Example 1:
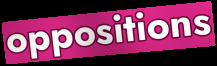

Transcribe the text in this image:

oppositions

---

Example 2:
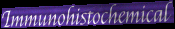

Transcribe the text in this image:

Immunohistochemical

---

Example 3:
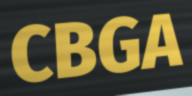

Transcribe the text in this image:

CBGA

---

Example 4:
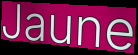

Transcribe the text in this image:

Jaune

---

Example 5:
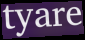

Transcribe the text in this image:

tyare